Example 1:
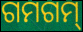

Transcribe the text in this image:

ଗମଗମ୍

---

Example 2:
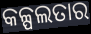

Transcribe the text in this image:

କଳ୍ପଲତାର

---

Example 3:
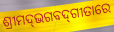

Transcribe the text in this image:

ଶ୍ରୀମଦ୍‌ଭଗବଦ୍‌ଗୀତାରେ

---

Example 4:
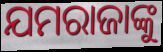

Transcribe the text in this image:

ଯମରାଜାଙ୍କୁ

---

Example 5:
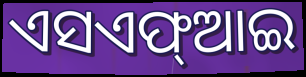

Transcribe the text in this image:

ଏସଏଫ୍ଆଇ